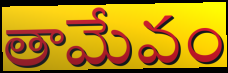
తామేవం